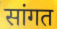
सांगत